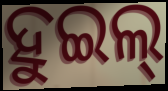
ହୁଇଲ୍